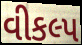
વીકલ્પ